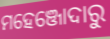
ମହେଞ୍ଜୋଦାରୁ